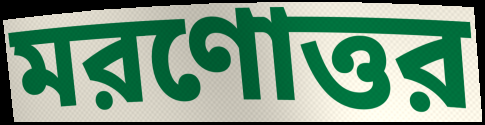
মরণোত্তর